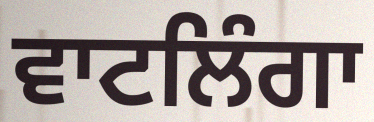
ਵਾਟਲਿੰਗਾ